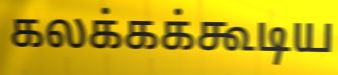
கலக்கக்கூடிய